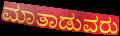
ಮಾತಾಡುವರು